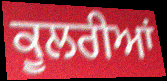
ਕੂਲਰੀਆਂ